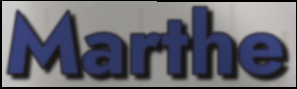
Marthe